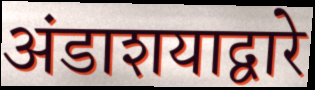
अंडाशयाद्वारे